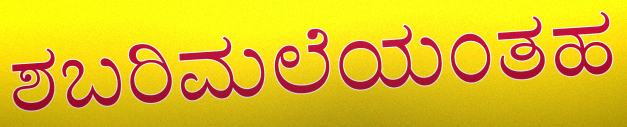
ಶಬರಿಮಲೆಯಂತಹ